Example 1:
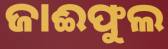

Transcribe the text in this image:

ଜାଈଫୁଲ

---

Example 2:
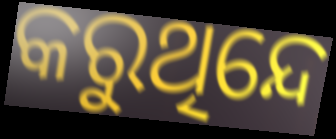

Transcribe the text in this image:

କରୁଥିନ୍ଦେ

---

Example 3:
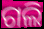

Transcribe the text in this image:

ଗଲି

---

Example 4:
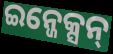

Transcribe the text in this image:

ଇନ୍ଜେକ୍ସନ୍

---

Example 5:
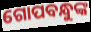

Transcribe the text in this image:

ଗୋପବନ୍ଧୁଙ୍କ